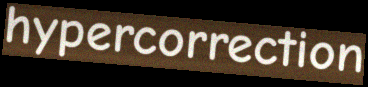
hypercorrection